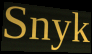
Snyk